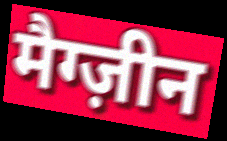
मैग्ज़ीन